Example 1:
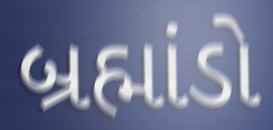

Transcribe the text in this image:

બ્રહ્માંડો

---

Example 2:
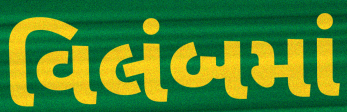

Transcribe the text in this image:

વિલંબમાં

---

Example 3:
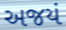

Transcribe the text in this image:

અજયં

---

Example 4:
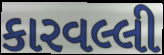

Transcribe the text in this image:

કારવલ્લી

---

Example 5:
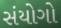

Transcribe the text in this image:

સંયોગો